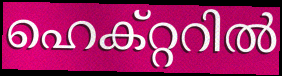
ഹെക്റ്ററിൽ